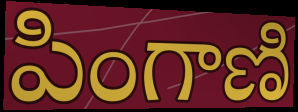
పింగాణి